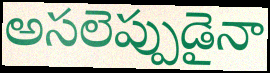
అసలెప్పుడైనా